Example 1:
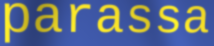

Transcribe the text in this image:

parassa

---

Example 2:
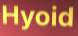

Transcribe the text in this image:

Hyoid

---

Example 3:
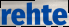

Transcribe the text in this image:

rehte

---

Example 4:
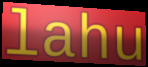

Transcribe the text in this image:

lahu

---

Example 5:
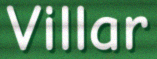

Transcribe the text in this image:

Villar